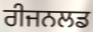
ਰੀਜਨਲਡ